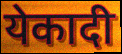
येकादी